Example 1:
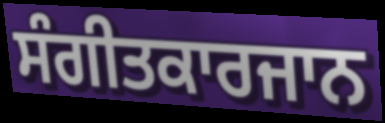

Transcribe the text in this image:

ਸੰਗੀਤਕਾਰਜਾਨ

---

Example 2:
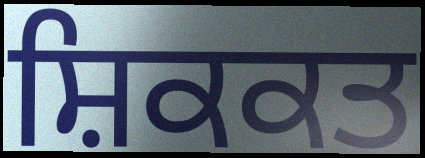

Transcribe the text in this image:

ਸ਼ਿਕਕਤ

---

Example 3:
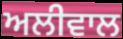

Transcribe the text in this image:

ਅਲੀਵਾਲ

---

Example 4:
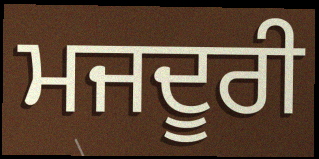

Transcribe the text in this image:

ਮਜਦੂਰੀ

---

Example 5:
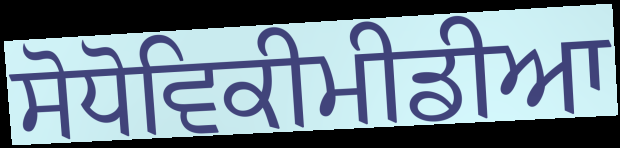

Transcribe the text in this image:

ਸੋਧੋਵਿਕੀਮੀਡੀਆ